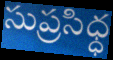
సుప్రసిధ్ధ